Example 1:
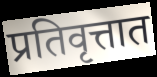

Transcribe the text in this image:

प्रतिवृत्तात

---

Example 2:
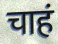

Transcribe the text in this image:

चाहं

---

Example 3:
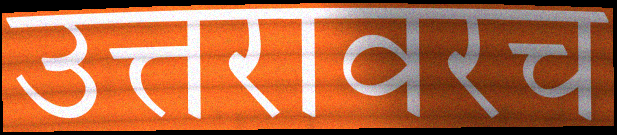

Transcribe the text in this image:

उत्तरावरच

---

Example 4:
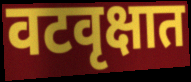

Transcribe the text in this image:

वटवृक्षात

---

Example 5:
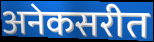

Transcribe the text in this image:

अनेकसरीत